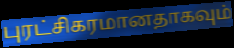
புரட்சிகரமானதாகவும்